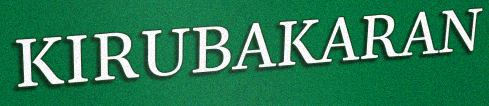
KIRUBAKARAN